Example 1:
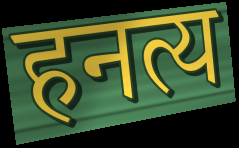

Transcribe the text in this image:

हनत्य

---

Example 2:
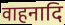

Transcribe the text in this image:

वाहनादि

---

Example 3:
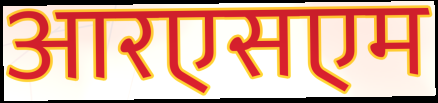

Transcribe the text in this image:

आरएसएम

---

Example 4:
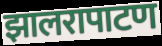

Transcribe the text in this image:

झालरापाटण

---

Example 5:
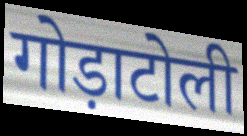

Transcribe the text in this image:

गोड़ाटोली